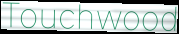
Touchwood